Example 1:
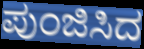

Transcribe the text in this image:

ಪುಂಜಿಸಿದ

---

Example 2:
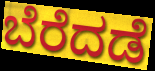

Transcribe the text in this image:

ಬೆರೆದಡೆ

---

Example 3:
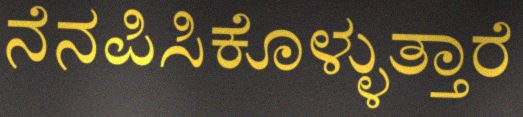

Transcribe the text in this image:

ನೆನಪಿಸಿಕೊಳ್ಳುತ್ತಾರೆ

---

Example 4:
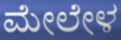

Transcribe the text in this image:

ಮೇಲೇಳ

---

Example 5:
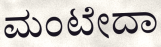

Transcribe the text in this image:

ಮಂಟೇದಾ